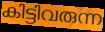
കിട്ടിവരുന്ന